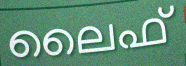
ലൈഫ്